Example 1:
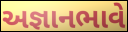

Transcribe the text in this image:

અજ્ઞાનભાવે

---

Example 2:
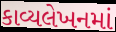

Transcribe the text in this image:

કાવ્યલેખનમાં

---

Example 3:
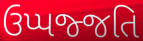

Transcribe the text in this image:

ઉપ્પજ્જતિ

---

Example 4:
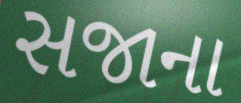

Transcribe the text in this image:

સજાના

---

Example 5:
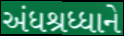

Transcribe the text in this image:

અંધશ્રધ્ધાને